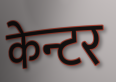
केन्टर